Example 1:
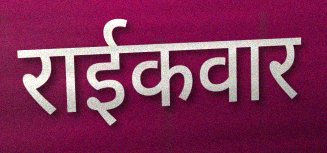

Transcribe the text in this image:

राईकवार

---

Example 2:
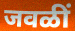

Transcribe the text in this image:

जवळीं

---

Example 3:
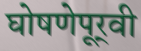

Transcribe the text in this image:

घोषणेपूर्वी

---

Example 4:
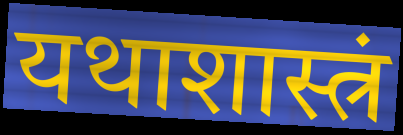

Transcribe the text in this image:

यथाशास्त्रं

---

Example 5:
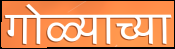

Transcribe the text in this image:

गोळ्याच्या